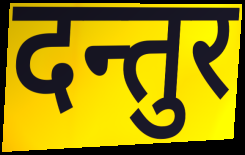
दन्तुर